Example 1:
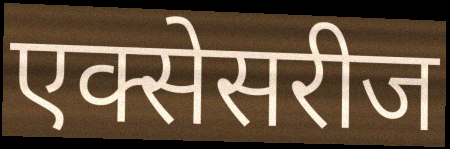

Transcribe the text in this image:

एक्सेसरीज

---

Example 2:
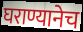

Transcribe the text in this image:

घराण्यानेच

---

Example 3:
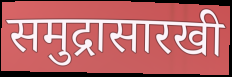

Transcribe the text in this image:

समुद्रासारखी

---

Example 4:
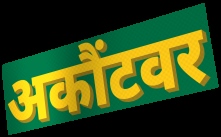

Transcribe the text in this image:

अकौंटवर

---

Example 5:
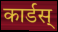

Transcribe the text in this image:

कार्डस्